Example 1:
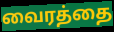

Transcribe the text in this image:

வைரத்தை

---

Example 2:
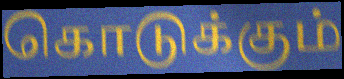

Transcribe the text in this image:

கொடுக்கும்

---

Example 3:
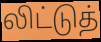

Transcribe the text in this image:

லிட்டுத்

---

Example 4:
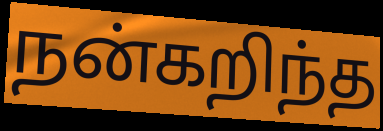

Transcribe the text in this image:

நன்கறிந்த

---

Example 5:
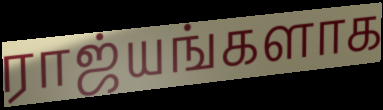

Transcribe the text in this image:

ராஜ்யங்களாக